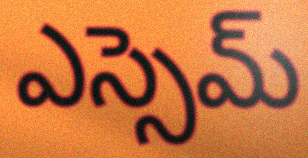
ఎస్సెమ్